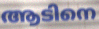
ആടിനെ